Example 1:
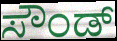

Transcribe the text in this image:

ಸೌಂಡ್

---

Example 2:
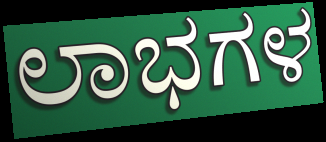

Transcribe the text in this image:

ಲಾಭಗಳ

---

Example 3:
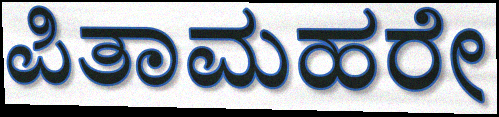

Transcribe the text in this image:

ಪಿತಾಮಹರೇ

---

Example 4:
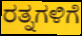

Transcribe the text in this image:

ರತ್ನಗಳಿಗೆ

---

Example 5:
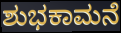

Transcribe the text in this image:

ಶುಭಕಾಮನೆ